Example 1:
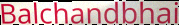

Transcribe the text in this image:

Balchandbhai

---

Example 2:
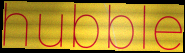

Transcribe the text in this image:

hubble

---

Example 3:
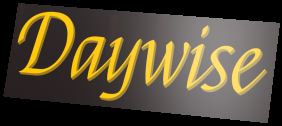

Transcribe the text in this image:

Daywise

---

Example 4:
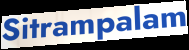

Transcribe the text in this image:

Sitrampalam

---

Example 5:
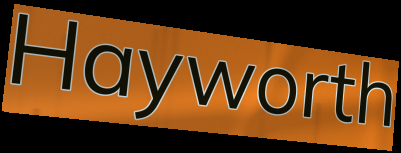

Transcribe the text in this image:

Hayworth